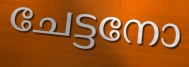
ചേട്ടനോ